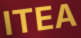
ITEA